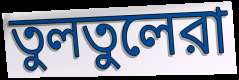
তুলতুলেরা